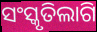
ସଂସ୍କୃତିଲାଗି